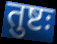
तुष्टः